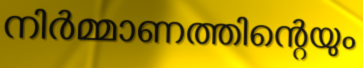
നിർമ്മാണത്തിന്റെയും